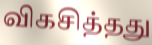
விகசித்தது